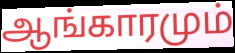
ஆங்காரமும்